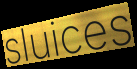
sluices